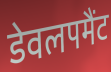
डेवलपमैंट